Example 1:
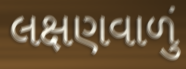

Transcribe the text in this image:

લક્ષણવાળું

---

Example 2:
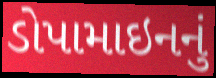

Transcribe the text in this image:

ડોપામાઇનનું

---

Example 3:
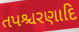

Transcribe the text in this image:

તપશ્ચરણાદિ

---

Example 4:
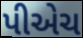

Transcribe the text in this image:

પીએચ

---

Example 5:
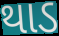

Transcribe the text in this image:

થાડ